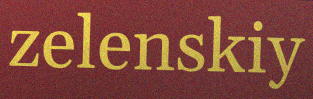
zelenskiy